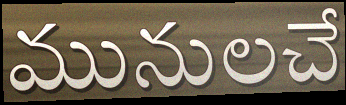
మునులచే